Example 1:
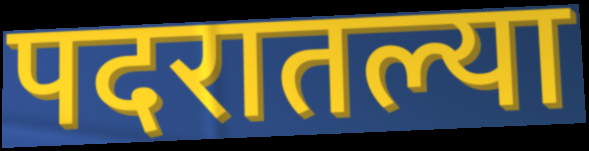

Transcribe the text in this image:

पदरातल्या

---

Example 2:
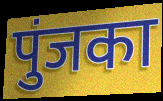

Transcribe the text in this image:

पुंजका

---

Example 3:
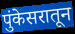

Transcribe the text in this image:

पुंकेसरातून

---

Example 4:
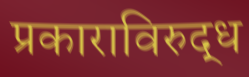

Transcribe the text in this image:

प्रकाराविरुद्ध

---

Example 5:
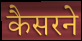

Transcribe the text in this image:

कैसरने